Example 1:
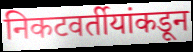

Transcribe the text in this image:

निकटवर्तीयांकडून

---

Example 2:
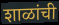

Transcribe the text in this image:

शाळांची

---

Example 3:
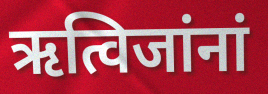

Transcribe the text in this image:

ऋत्विजांनां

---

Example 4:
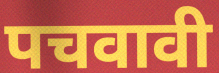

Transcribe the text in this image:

पचवावी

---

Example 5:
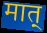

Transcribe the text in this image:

मात्